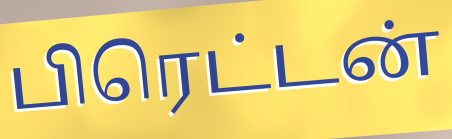
பிரெட்டன்